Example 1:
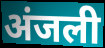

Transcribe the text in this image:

अंजली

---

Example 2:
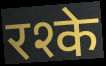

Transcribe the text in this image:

रश्के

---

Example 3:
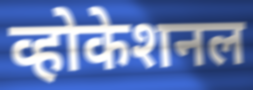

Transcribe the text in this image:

व्होकेशनल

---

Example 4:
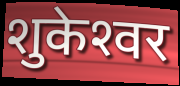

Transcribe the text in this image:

शुकेश्वर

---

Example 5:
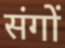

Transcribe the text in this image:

संगों